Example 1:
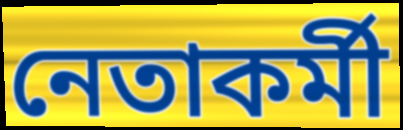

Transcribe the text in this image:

নেতাকর্মী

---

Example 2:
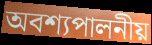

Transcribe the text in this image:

অবশ্যপালনীয়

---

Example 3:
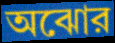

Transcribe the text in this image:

অঝোর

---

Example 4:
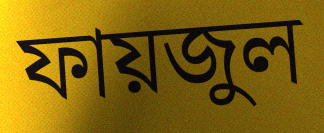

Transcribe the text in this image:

ফায়জুল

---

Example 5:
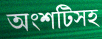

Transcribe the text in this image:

অংশটিসহ